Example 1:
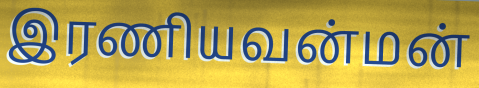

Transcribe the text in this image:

இரணியவன்மன்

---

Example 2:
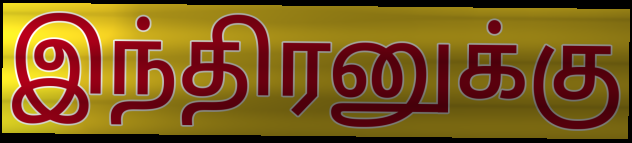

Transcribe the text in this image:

இந்திரனுக்கு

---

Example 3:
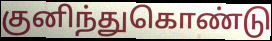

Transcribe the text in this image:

குனிந்துகொண்டு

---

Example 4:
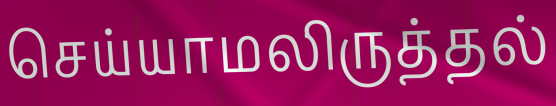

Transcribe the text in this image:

செய்யாமலிருத்தல்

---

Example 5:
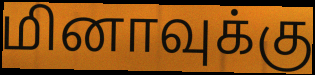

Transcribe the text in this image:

மினாவுக்கு